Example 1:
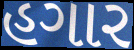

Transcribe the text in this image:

હગાર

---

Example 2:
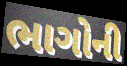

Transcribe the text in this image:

ભાગોની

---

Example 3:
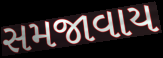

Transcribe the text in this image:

સમજાવાય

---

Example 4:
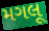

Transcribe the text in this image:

મગલૂ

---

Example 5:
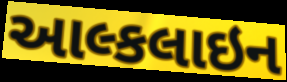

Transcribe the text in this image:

આલ્કલાઇન